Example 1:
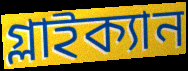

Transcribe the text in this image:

গ্লাইক্যান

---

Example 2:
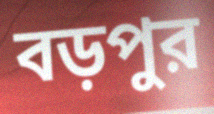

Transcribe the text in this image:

বড়পুর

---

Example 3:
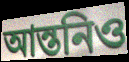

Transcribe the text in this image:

আন্তনিও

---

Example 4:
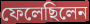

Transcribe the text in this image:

ফেলেছিলেন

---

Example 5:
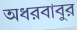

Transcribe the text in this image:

অধরবাবুর